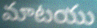
మాటయు